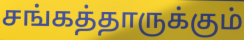
சங்கத்தாருக்கும்